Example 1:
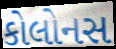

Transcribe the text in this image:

કોલોનસ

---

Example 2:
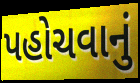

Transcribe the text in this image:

પહોચવાનું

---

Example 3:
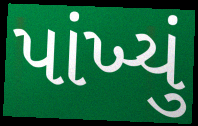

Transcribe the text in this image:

પાંખ્યું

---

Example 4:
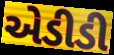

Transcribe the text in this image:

એડીડી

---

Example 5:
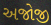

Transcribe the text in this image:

અજોજી